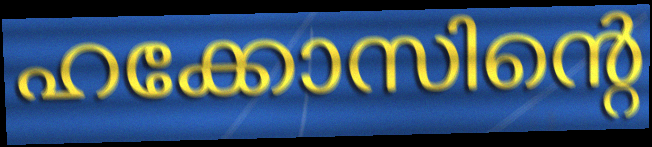
ഹക്കോസിന്റെ